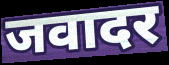
जवादर